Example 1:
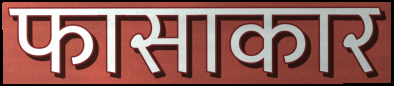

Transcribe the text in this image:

फासाकार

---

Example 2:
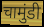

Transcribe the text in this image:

चामुंडी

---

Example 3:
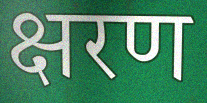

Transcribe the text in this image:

क्षरण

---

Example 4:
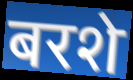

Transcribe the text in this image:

बरशे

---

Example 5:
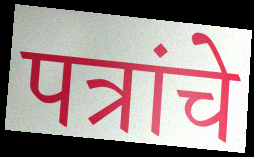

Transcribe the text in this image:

पत्रांचे